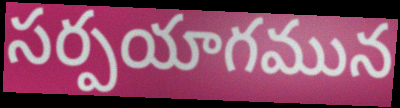
సర్పయాగమున